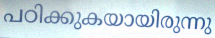
പഠിക്കുകയായിരുന്നു